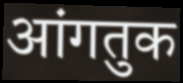
आंगतुक